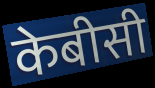
केबीसी